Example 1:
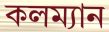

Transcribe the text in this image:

কলম্যান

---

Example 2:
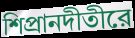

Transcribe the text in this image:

শিপ্রানদীতীরে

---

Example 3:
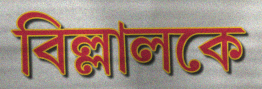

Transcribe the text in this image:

বিল্লালকে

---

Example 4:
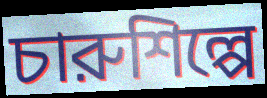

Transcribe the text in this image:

চারুশিল্পে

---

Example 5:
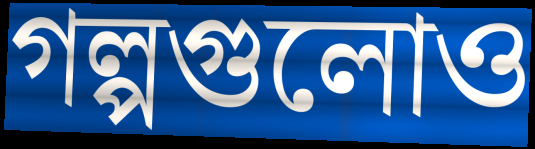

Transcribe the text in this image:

গল্পগুলোও